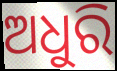
ଅଧୁରି